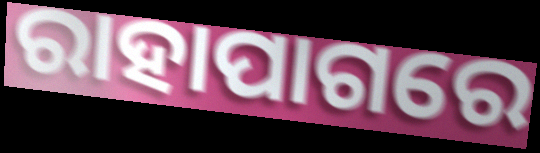
ରାହାପାଗରେ